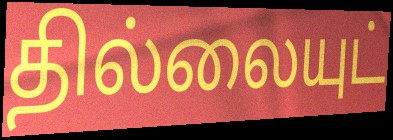
தில்லையுட்